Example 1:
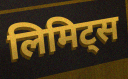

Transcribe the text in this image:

लिमिट्स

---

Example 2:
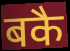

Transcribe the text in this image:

बकै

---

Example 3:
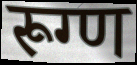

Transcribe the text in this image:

रूग्ण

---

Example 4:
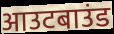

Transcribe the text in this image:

आउटबाउंड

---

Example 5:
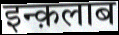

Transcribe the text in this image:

इन्क़लाब